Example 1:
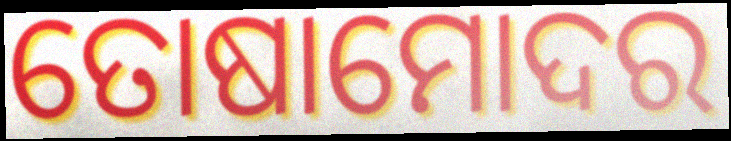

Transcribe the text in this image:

ତୋଷାମୋଦର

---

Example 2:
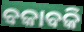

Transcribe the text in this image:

ବକାବକି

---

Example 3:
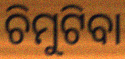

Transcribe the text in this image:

ଚିମୁଟିବା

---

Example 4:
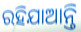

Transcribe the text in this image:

ରହିଯାଆନ୍ତି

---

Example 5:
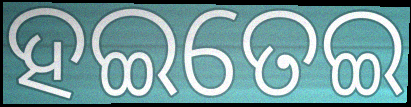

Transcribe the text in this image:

ହଇତେଇ